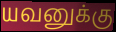
யவனுக்கு